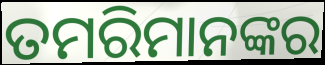
ତମରିମାନଙ୍କର